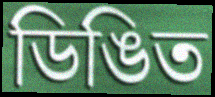
ডিঙিত